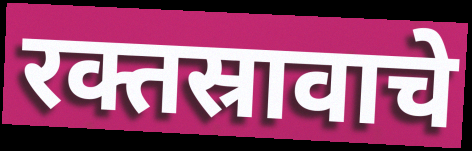
रक्तस्रावाचे